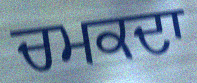
ਚਮਕਦਾ